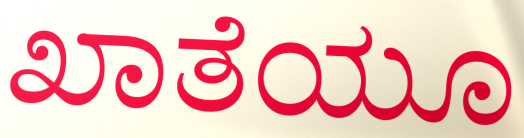
ಖಾತೆಯೂ